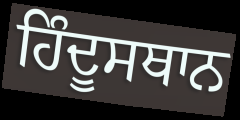
ਹਿੰਦੂਸਥਾਨ